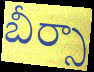
బీర్సా